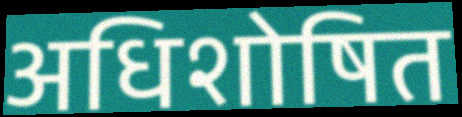
अधिशोषित